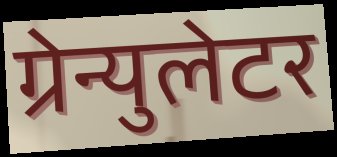
ग्रेन्युलेटर